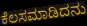
ಕೆಲಸಮಾಡಿದನು